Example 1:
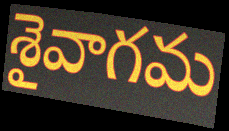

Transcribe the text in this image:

శైవాగమ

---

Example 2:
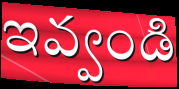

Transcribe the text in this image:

ఇవ్వండి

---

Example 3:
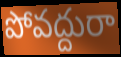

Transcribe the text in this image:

పోవద్దురా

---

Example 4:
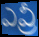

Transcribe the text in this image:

ఎవ్రీ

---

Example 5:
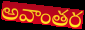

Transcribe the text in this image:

అవాంతర